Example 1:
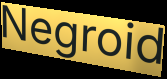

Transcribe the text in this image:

Negroid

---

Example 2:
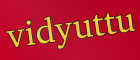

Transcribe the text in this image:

vidyuttu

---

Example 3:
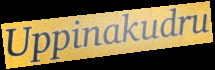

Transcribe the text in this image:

Uppinakudru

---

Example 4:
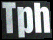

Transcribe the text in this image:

Tph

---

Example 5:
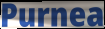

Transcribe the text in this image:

Purnea